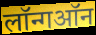
लॉन्गऑन